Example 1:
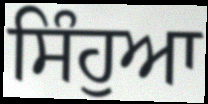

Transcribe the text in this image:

ਸਿੰਹੁਆ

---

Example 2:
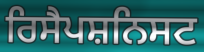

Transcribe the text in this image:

ਰਿਸੈਪਸ਼ਨਿਸਟ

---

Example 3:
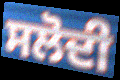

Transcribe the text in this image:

ਸਲੋਦੀ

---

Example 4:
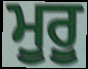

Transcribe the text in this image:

ਮੂਰੂ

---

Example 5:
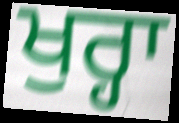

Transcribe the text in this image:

ਖੁਰ੍ਹਾ